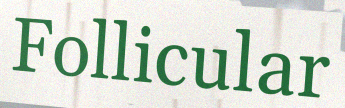
Follicular